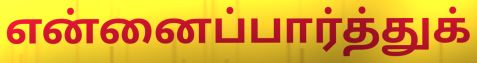
என்னைப்பார்த்துக்